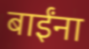
बाईंना